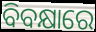
ବିବକ୍ଷାରେ